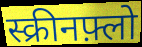
स्क्रीनफ़्लो